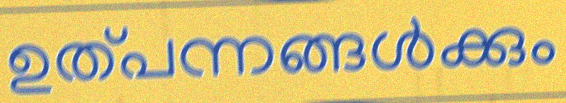
ഉത്പന്നങ്ങൾക്കും